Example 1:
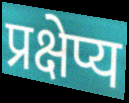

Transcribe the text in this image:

प्रक्षेप्य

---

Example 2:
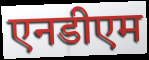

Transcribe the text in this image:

एनडीएम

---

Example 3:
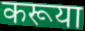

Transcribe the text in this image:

करूया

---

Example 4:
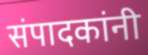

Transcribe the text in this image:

संपादकांनी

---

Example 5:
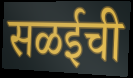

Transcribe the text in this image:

सळईची